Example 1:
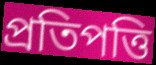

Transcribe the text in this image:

প্রতিপত্তি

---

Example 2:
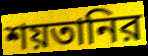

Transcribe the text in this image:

শয়তানির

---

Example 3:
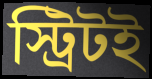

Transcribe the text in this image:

স্ট্রিটই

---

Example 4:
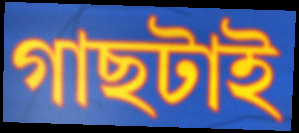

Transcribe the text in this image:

গাছটাই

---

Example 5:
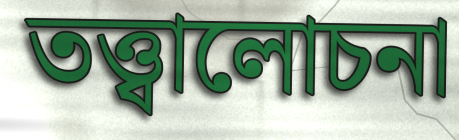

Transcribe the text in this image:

তত্ত্বালোচনা